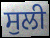
ਸੁਲੀ